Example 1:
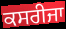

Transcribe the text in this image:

ਕਸਰੀਜਾ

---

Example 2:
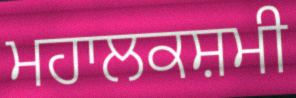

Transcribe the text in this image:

ਮਹਾਲਕਸ਼ਮੀ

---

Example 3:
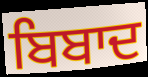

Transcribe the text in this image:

ਬਿਬਾਦ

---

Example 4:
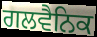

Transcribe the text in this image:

ਗਲਵੈਨਿਕ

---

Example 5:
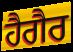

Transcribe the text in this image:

ਹੈਗੈਰ